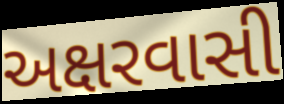
અક્ષરવાસી